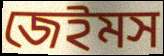
জেইমস